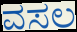
ವಸಲ